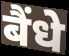
बैंधे